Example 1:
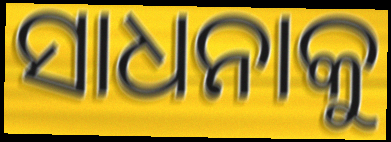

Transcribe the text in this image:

ସାଧନାକୁ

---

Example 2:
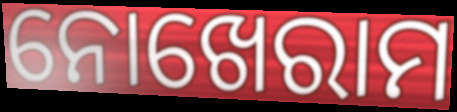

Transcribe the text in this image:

ନୋଖେରାମ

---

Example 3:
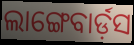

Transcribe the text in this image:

ଲାଙ୍ଗେବାର୍ଡ଼ସ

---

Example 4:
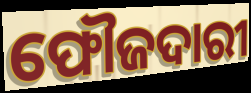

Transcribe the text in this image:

ଫୌଜଦାରୀ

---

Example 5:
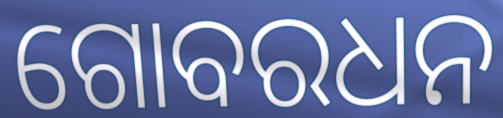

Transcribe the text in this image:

ଗୋବରଧନ